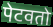
पेटवतो